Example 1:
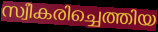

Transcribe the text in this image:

സ്വീകരിച്ചെത്തിയ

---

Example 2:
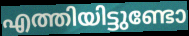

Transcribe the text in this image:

എത്തിയിട്ടുണ്ടോ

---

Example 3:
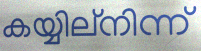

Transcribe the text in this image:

കയ്യില്നിന്ന്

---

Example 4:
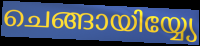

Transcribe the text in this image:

ചെങ്ങായിയ്യ്യേ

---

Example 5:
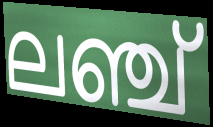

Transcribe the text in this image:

ലഞ്ച്